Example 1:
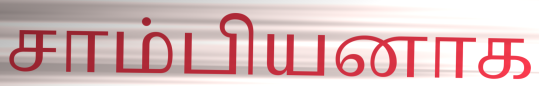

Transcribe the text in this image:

சாம்பியனாக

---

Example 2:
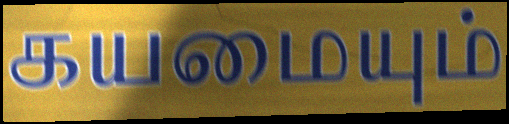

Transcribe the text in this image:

கயமையும்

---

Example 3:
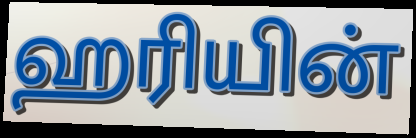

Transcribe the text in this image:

ஹரியின்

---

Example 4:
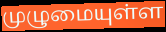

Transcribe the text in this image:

முழுமையுள்ள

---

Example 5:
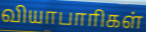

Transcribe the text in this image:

வியாபாரிகள்